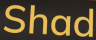
Shad